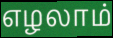
எழலாம்